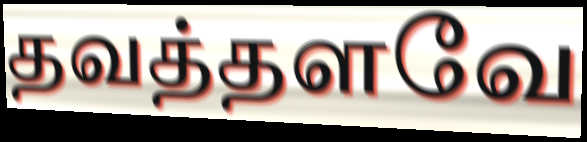
தவத்தளவே